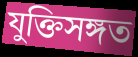
যুক্তিসঙ্গত